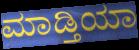
ಮಾಡ್ತಿಯಾ